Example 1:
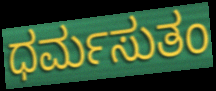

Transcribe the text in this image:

ಧರ್ಮಸುತಂ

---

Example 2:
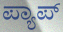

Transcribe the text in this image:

ಪ್ಯಾಪ್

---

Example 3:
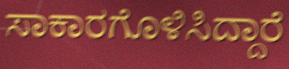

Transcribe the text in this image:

ಸಾಕಾರಗೊಳಿಸಿದ್ದಾರೆ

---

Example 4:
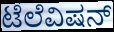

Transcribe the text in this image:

ಟೆಲೆವಿಷನ್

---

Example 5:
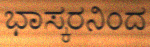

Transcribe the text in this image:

ಭಾಸ್ಕರನಿಂದ